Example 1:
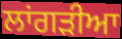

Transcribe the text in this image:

ਲਾਂਗੜੀਆ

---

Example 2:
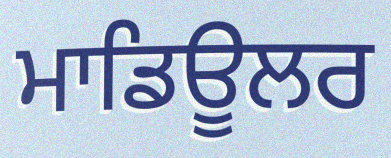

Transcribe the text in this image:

ਮਾਡਿਊਲਰ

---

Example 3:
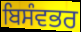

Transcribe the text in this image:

ਬਿਸੰਵਭਰ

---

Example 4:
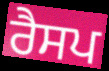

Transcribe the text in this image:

ਰੈਸਪ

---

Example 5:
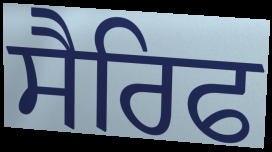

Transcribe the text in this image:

ਸੈਰਿਫ